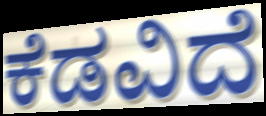
ಕೆಡವಿದೆ